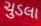
ચુડલા